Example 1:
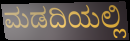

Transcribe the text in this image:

ಮಡದಿಯಲ್ಲಿ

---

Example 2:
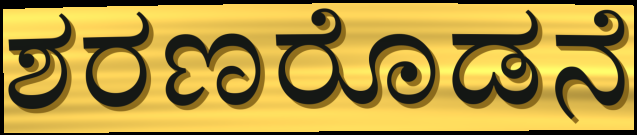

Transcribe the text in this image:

ಶರಣರೊಡನೆ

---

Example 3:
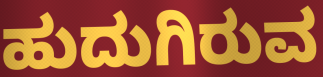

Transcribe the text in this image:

ಹುದುಗಿರುವ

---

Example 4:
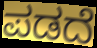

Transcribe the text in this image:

ಪಡದೆ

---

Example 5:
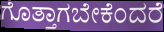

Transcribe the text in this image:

ಗೊತ್ತಾಗಬೇಕೆಂದರೆ